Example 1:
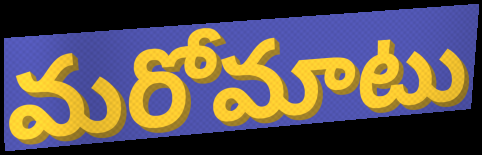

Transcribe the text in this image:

మరోమాటు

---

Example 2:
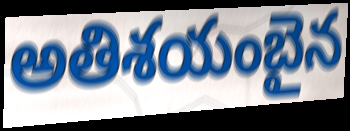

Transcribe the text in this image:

అతిశయంబైన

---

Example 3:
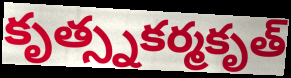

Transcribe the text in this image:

కృత్స్నకర్మకృత్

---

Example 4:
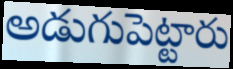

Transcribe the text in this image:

అడుగుపెట్టారు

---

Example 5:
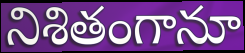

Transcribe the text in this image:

నిశితంగానూ